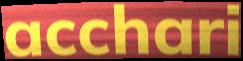
acchari